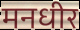
मनधीर